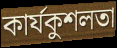
কাৰ্যকুশলতা